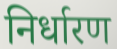
निर्धारण